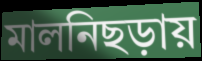
মালনিছড়ায়